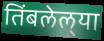
तिंबलेल्या